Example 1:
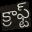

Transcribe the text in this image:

క్రాఫ్ట్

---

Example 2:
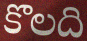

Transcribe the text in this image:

కొలది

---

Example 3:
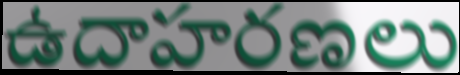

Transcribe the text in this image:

ఉదాహరణలు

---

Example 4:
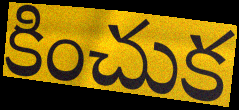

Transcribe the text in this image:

కించుక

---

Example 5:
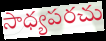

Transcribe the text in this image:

సాధ్యపరచు